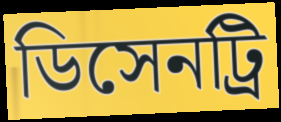
ডিসেনট্রি